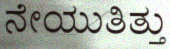
ನೇಯುತಿತ್ತು